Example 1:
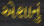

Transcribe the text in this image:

એશાનું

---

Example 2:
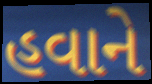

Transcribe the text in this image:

હવાને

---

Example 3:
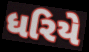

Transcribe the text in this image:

ધરિયે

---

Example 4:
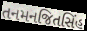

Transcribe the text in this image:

તનમનજિતસિંહ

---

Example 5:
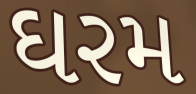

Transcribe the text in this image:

ઘરમ